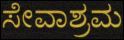
ಸೇವಾಶ್ರಮ